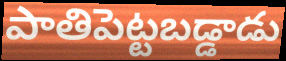
పాతిపెట్టబడ్డాడు